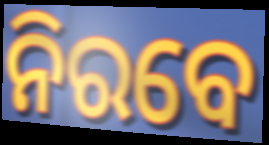
ନିରବେ